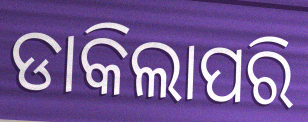
ଡାକିଲାପରି